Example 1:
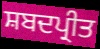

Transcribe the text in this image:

ਸ਼ਬਦਪ੍ਰੀਤ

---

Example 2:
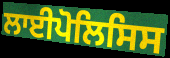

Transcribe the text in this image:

ਲਾਈਪੋਲਿਸਿਸ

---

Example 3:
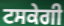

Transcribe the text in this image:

ਟਸਕੇਗੀ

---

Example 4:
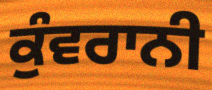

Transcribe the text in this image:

ਕੁੰਵਰਾਨੀ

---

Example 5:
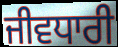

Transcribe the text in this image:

ਜੀਵਧਾਰੀ